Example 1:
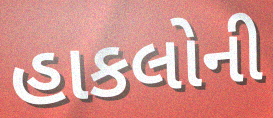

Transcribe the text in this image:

હાકલોની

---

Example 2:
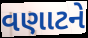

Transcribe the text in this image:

વણાટને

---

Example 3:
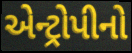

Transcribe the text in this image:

એન્ટ્રોપીનો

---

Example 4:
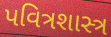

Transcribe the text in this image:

પવિત્રશાસ્ત્ર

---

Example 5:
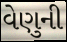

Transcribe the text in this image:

વેણુની